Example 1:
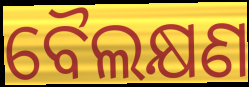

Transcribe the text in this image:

ବୈଲକ୍ଷଣ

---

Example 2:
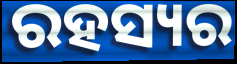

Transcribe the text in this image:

ରହସ୍ୟର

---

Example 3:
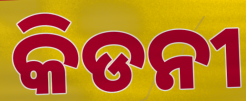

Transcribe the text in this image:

କିଡନୀ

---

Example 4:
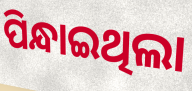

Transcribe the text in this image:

ପିନ୍ଧାଇଥିଲା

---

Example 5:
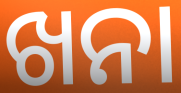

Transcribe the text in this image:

ଖନା